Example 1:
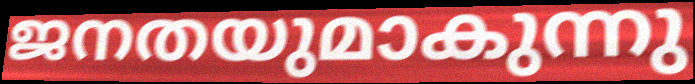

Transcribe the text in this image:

ജനതയുമാകുന്നു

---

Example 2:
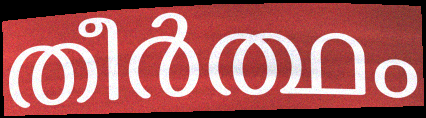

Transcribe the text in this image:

തീർത്ഥം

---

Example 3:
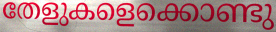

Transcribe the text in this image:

തേളുകളെക്കൊണ്ടു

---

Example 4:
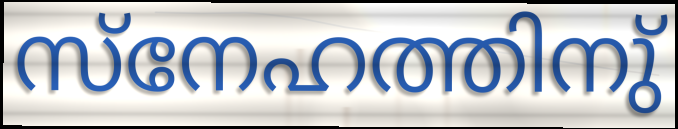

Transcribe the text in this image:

സ്നേഹത്തിനു്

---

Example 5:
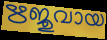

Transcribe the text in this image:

ഋജുവായ